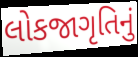
લોકજાગૃતિનું